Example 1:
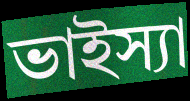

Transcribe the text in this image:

ভাইস্যা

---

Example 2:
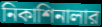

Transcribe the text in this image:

নিকাশিনালার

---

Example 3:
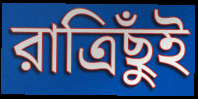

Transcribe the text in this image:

রাত্রিছুঁই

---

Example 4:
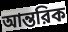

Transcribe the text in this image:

আন্তরিক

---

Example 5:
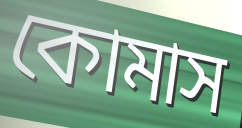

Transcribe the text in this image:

কোমাস